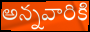
అన్నవారికి